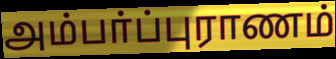
அம்பர்ப்புராணம்